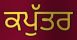
ਕਪੁੱਤਰ